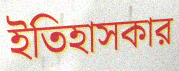
ইতিহাসকার